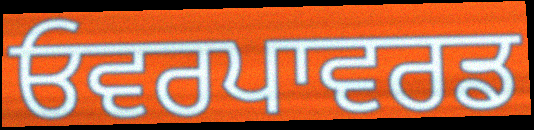
ਓਵਰਪਾਵਰਡ